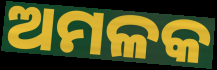
ଅମଳକ